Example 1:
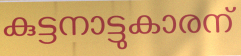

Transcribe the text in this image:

കുട്ടനാട്ടുകാരന്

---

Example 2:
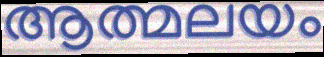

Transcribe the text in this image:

ആത്മലയം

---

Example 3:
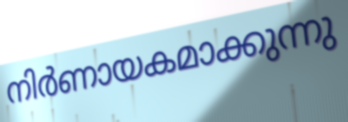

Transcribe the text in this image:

നിർണായകമാക്കുന്നു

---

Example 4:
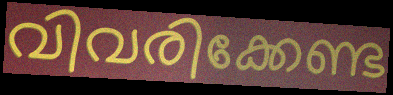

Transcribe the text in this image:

വിവരിക്കേണ്ട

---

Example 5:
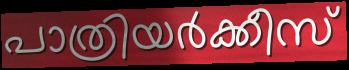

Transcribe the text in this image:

പാത്രിയർക്കീസ്